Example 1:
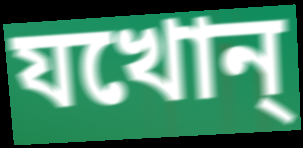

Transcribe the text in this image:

যখোন্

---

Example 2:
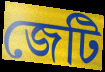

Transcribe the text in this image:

জেটি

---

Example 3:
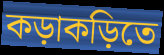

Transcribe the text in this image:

কড়াকড়িতে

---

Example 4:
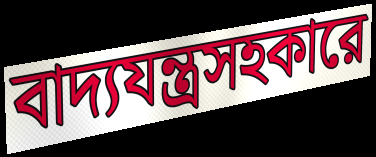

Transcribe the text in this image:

বাদ্যযন্ত্রসহকারে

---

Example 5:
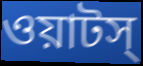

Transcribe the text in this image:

ওয়াটস্